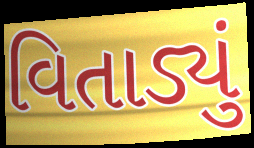
વિતાડ્યું